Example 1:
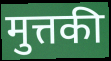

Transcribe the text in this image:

मुत्तकी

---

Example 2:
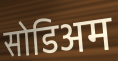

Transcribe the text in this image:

सोडिअम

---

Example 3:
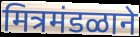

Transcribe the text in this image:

मित्रमंडळाने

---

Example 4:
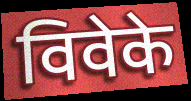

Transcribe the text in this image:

विवेके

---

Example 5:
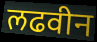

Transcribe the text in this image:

लढवीन